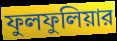
ফুলফুলিয়ার